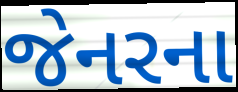
જેનરના